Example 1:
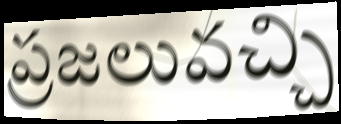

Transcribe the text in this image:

ప్రజలువచ్చి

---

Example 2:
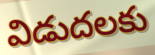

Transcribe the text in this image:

విడుదలకు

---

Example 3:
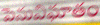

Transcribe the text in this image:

పెనువిఘాతం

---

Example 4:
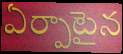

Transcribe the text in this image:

ఏర్పాటైన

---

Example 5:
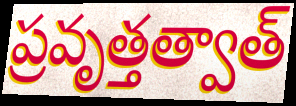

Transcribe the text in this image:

ప్రవృత్తత్వాత్